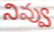
నివ్వు